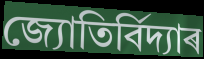
জ্যোতিৰ্বিদ্যাৰ